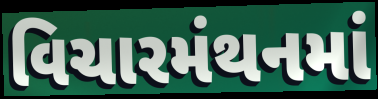
વિચારમંથનમાં